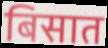
बिसात